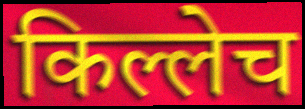
किल्लेच